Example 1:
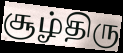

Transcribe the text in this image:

சூழ்திரு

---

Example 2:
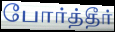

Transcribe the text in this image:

போர்த்தீர்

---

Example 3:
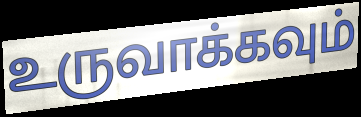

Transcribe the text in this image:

உருவாக்கவும்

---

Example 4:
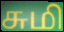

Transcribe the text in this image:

சுமி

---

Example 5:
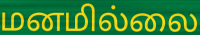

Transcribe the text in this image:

மனமில்லை